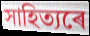
সাহিত্যৰে